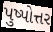
પુષ્પોત્તર